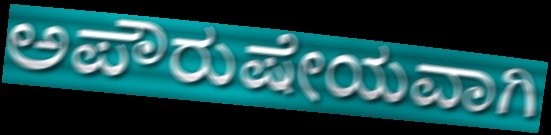
ಅಪೌರುಷೇಯವಾಗಿ